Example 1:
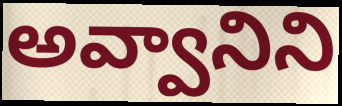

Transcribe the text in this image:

అవ్వానిని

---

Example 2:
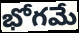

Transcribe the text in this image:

భోగమే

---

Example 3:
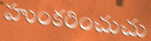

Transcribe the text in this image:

హుంకరించుచు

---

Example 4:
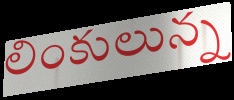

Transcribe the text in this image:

లింకులున్న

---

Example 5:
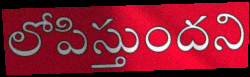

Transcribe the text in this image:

లోపిస్తుందని